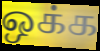
ஒக்க